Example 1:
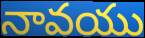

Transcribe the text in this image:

నావయు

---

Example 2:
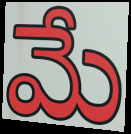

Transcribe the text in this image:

మే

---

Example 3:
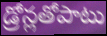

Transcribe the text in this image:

డ్రోన్లతోపాటు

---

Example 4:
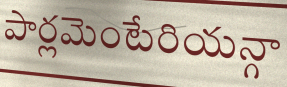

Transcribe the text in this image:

పార్లమెంటేరియన్గా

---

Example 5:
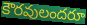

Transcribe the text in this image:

కౌరవులందరూ